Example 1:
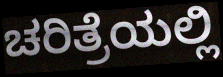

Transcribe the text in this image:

ಚರಿತ್ರೆಯಲ್ಲಿ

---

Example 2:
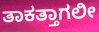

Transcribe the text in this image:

ತಾಕತ್ತಾಗಲೀ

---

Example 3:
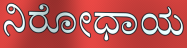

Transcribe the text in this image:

ನಿರೋಧಾಯ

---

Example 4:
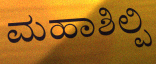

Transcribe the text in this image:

ಮಹಾಶಿಲ್ಪಿ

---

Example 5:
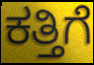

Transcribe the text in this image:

ಕತ್ತಿಗೆ